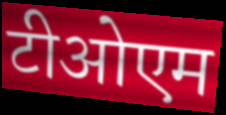
टीओएम